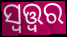
ସ୍ୱତ୍ତ୍ୱର